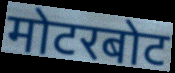
मोटरबोट